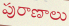
పురాణాలు